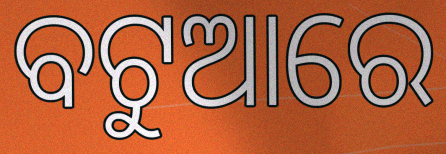
ବଟୁଆରେ